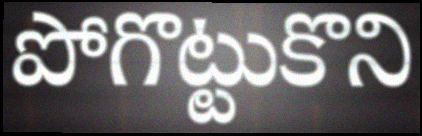
పోగొట్టుకొని